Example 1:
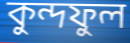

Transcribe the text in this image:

কুন্দফুল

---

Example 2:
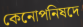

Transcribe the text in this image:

কেনোপনিষদে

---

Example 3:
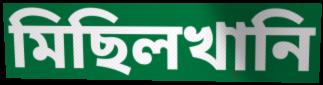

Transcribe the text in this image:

মিছিলখানি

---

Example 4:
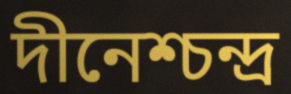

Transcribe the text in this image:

দীনেশ্চন্দ্র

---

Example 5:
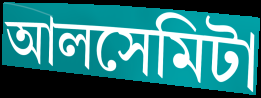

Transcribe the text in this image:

আলসেমিটা